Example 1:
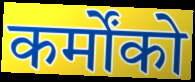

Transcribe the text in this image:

कर्मोंको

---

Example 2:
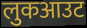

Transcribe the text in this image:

लुकआउट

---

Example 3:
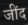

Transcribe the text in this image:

जींद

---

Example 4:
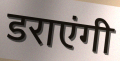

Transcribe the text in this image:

डराएंगी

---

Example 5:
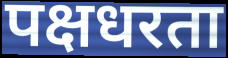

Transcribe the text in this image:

पक्षधरता